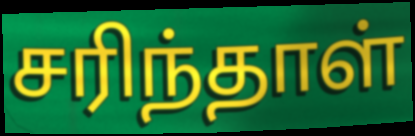
சரிந்தாள்